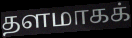
தளமாகக்